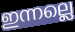
ഇന്നല്ലെ